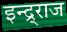
इन्द्र्राज